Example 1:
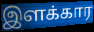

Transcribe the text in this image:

இளக்கார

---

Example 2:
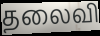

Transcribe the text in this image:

தலைவி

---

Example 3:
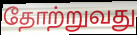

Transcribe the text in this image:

தோற்றுவது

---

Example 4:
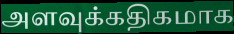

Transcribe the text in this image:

அளவுக்கதிகமாக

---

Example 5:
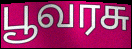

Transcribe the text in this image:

பூவரசு